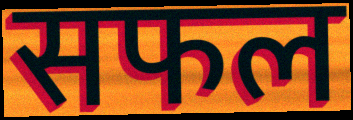
सफल